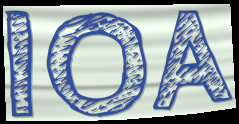
IOA